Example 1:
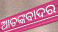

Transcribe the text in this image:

ଆତଙ୍କବାଦର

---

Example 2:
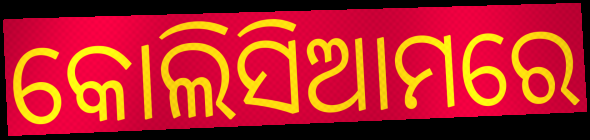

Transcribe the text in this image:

କୋଲିସିଆମରେ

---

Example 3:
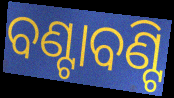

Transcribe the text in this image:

ବଣ୍ଟାବଣ୍ଟି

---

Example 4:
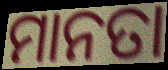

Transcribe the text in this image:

ମାନତା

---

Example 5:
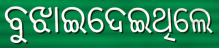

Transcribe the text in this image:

ବୁଝାଇଦେଇଥିଲେ